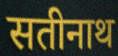
सतीनाथ